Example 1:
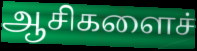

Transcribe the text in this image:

ஆசிகளைச்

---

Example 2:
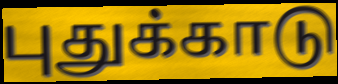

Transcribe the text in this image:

புதுக்காடு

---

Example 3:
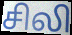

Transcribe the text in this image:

சிலி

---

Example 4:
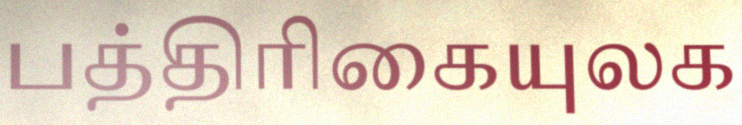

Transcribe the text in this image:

பத்திரிகையுலக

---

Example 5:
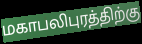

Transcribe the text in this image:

மகாபலிபுரத்திற்கு